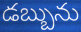
డబ్బును